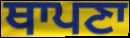
ਥਾਪਣਾ